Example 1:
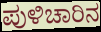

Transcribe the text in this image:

ಪುಳಿಚಾರಿನ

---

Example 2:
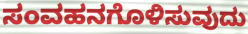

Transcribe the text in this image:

ಸಂವಹನಗೊಳಿಸುವುದು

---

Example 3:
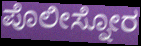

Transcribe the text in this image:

ಪೊಲೀಸ್ನೋರ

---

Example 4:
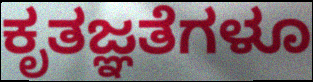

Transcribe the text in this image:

ಕೃತಜ್ಞತೆಗಳೂ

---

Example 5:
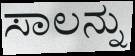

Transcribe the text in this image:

ಸಾಲನ್ನು